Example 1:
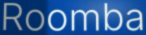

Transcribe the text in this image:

Roomba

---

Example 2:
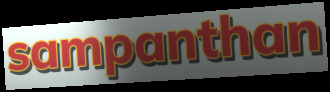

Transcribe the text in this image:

sampanthan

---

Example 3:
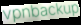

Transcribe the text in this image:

vpnbackup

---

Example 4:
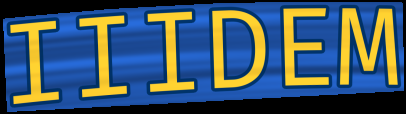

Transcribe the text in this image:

IIIDEM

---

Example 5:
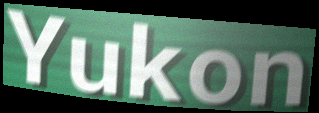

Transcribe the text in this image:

Yukon